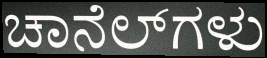
ಚಾನೆಲ್‌ಗಳು